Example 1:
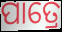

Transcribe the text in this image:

ପାତ୍ରେ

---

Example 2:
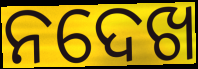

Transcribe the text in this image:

ନଦେଖ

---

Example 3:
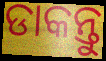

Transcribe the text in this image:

ଡାକନ୍ତୁ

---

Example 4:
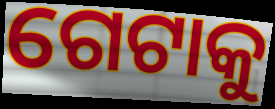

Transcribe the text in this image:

ଗେଟାକୁ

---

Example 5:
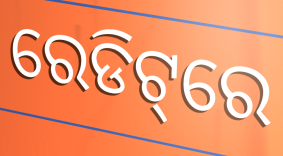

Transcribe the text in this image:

ରେଡିଟ୍‌ରେ